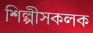
শিল্পীসকলক